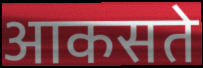
आकसते